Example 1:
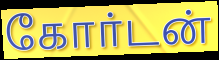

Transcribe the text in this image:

கோர்டன்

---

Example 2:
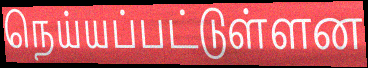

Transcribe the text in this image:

நெய்யப்பட்டுள்ளன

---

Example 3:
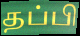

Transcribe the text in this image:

தப்பி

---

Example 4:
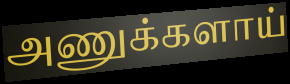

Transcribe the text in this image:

அணுக்களாய்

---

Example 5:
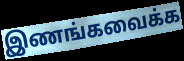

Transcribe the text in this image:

இணங்கவைக்க